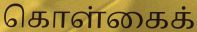
கொள்கைக்